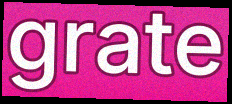
grate